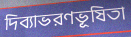
দিব্যাভরণভূষিতা